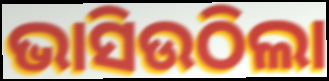
ଭାସିଉଠିଲା